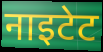
नाइटेट